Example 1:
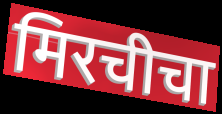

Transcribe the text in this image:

मिरचीचा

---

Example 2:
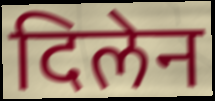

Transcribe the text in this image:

दिलेन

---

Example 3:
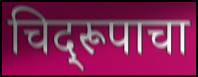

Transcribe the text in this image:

चिद्‌रूपाचा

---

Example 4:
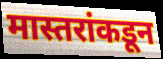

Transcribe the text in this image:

मास्तरांकडून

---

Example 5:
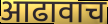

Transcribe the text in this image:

आढावाच